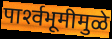
पार्श्वभूमीमुळे